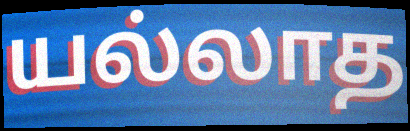
யல்லாத